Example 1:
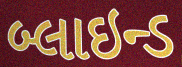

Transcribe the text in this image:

બ્લાઇન્ડ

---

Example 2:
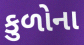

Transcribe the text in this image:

કુળોના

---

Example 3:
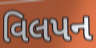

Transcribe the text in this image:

વિલપન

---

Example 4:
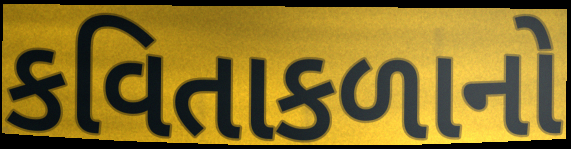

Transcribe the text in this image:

કવિતાકળાનો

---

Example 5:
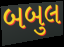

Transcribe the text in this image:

બબુલ